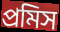
প্রমিস